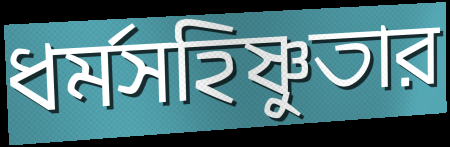
ধর্মসহিষ্ণুতার